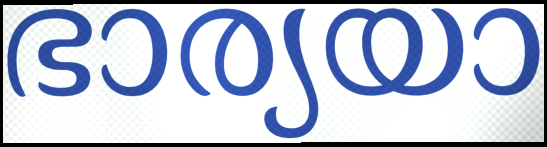
ഭാര്യയാ